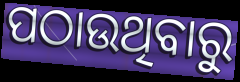
ପଠାଉଥିବାରୁ